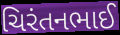
ચિરંતનભાઈ